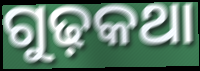
ଗୁଢ଼କଥା